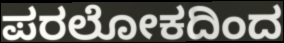
ಪರಲೋಕದಿಂದ